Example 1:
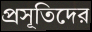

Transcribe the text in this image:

প্রসূতিদের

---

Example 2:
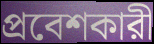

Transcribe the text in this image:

প্রবেশকারী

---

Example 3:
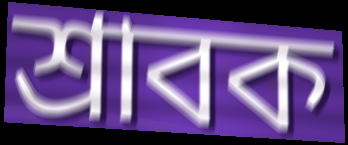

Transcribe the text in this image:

শ্রাবক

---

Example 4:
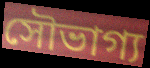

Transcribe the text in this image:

সৌভাগ্য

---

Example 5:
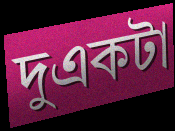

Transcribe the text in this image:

দুএকটা